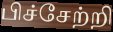
பிச்சேற்றி